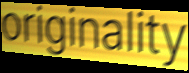
originality